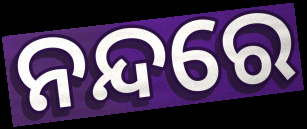
ନନ୍ଦରେ